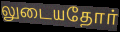
லுடையதோர்